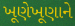
ખૂણેખૂણાને